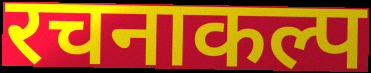
रचनाकल्प